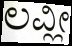
ಲವ್ಲೀ